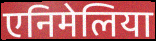
एनिमेलिया